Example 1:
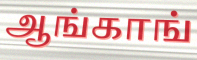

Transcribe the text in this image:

ஆங்காங்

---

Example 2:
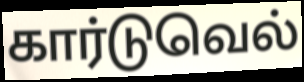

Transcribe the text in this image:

கார்டுவெல்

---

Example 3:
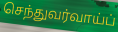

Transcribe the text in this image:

செந்துவர்வாய்ப்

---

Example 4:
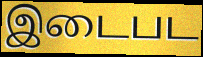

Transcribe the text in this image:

இடைபட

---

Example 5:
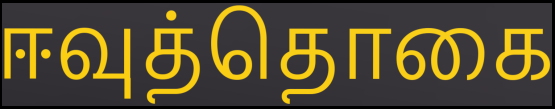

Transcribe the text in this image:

ஈவுத்தொகை